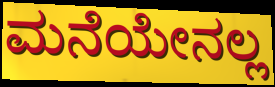
ಮನೆಯೇನಲ್ಲ